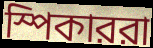
স্পিকাররা